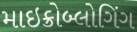
માઇક્રોબ્લોગિંગ